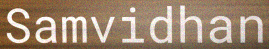
Samvidhan